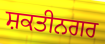
ਸ਼ਕਤੀਨਗਰ